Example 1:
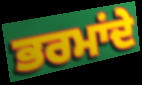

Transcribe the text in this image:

ਭਰਮਾਂਦੇ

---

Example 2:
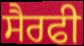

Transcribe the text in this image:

ਸੈਰਫੀ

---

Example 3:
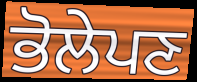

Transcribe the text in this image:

ਭੋਲੇਪਣ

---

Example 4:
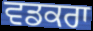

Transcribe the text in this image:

ਵਡਕਰਾ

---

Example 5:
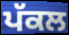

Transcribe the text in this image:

ਪੱਕਲ